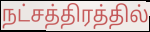
நட்சத்திரத்தில்